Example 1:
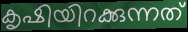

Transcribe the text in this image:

കൃഷിയിറക്കുന്നത്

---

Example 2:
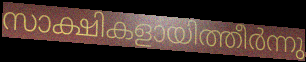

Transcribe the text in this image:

സാക്ഷികളായിത്തീർന്നു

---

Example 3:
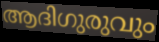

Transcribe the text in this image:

ആദിഗുരുവും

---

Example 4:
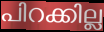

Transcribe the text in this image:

പിറക്കില്ല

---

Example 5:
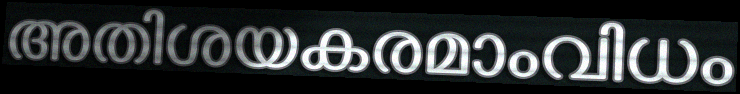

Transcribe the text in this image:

അതിശയകരമാംവിധം